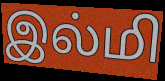
இல்மி